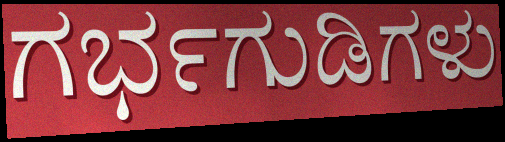
ಗರ್ಭಗುಡಿಗಳು